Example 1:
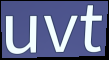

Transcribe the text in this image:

uvt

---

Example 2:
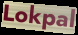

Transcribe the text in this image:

Lokpal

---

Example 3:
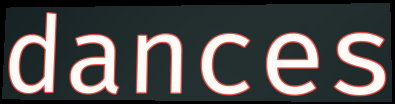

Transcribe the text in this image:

dances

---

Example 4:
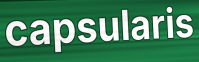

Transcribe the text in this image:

capsularis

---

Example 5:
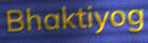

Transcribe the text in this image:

Bhaktiyog